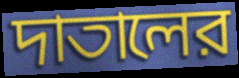
দাতালের